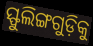
ସ୍ଫୁଲିଙ୍ଗଗୁଡ଼ିକୁ